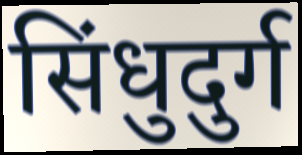
सिंधुदुर्ग